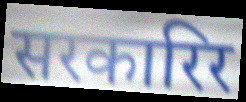
सरकारिर